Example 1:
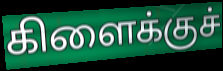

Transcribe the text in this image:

கிளைக்குச்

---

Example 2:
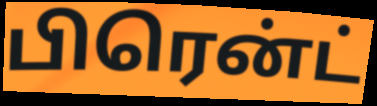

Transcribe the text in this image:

பிரென்ட்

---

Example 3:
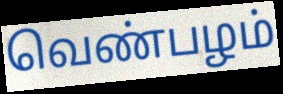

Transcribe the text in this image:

வெண்பழம்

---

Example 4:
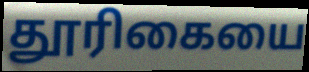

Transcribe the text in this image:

தூரிகையை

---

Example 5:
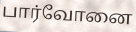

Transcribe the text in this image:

பார்வோனை